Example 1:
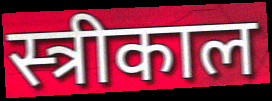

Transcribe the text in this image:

स्त्रीकाल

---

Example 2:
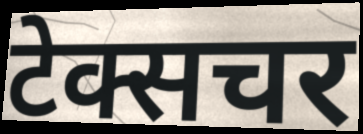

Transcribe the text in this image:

टेक्सचर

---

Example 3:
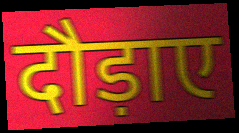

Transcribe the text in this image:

दौड़ाए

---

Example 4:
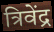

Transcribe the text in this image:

त्रिवेंद्र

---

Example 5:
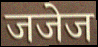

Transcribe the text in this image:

जजेज